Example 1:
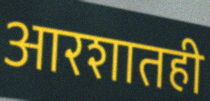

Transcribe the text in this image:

आरशातही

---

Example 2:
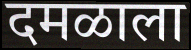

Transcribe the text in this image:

दमळाला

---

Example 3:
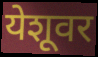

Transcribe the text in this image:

येशूवर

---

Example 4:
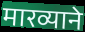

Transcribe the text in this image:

मारव्याने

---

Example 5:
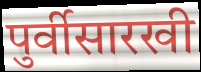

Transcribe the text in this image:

पुर्वीसारखी